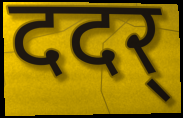
ददर्